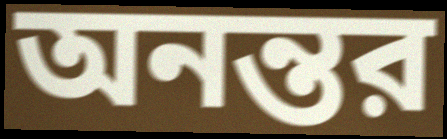
অনন্তর